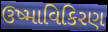
ઉષ્માવિકિરણ